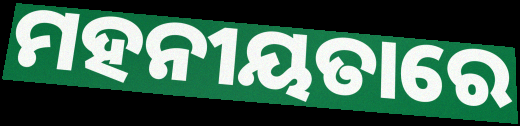
ମହନୀୟତାରେ